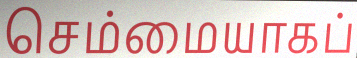
செம்மையாகப்